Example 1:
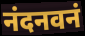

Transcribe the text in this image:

नंदनवनं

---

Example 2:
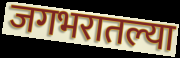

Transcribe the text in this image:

जगभरातल्या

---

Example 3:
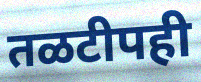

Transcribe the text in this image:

तळटीपही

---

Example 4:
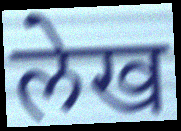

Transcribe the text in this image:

लेख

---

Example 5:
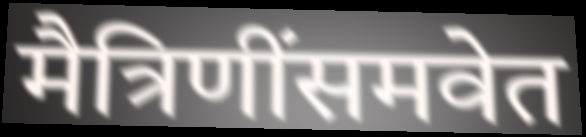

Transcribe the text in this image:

मैत्रिणींसमवेत